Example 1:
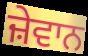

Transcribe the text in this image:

ਜ਼ੇਵਾਨ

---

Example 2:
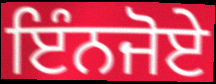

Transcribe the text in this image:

ਇੰਨਜੋਏ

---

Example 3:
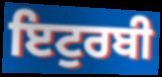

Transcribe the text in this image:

ਇਟੁਰਬੀ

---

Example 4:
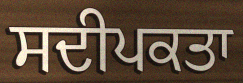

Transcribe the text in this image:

ਸਦੀਪਕਤਾ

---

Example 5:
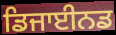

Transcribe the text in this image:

ਡਿਜਾਈਨਡ